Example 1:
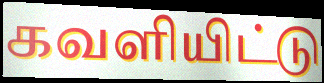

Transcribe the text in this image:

கவளியிட்டு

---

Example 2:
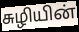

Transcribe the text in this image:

சுழியின்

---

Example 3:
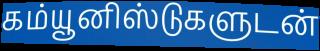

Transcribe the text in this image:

கம்யூனிஸ்டுகளுடன்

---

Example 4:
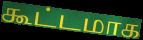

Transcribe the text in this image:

கூட்டமாக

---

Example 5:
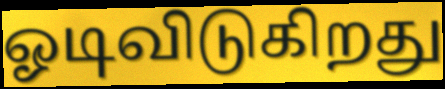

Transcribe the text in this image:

ஓடிவிடுகிறது